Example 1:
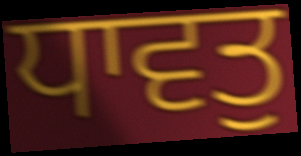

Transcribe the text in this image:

ਧਾਵਤੁ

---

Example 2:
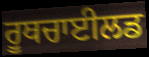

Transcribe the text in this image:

ਰੂਥਚਾਈਲਡ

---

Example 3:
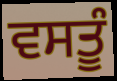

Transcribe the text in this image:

ਵਸਤੂੰ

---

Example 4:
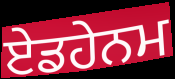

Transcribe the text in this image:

ਏਡਹੇਨਮ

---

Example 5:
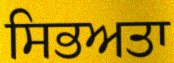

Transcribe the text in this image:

ਸਿਭਅਤਾ